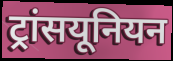
ट्रांसयूनियन